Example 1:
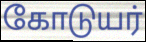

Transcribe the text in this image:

கோடுயர்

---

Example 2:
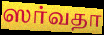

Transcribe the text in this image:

ஸர்வதா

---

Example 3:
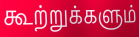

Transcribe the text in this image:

கூற்றுக்களும்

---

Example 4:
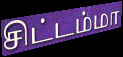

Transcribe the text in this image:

சிட்டம்மா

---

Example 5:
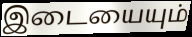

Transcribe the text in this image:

இடையையும்